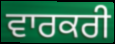
ਵਾਰਕਰੀ